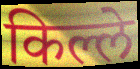
किल्ले